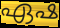
ഏഷ